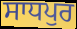
ਸਾਧਪੁਰ